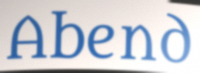
Abend